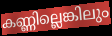
കണ്ണില്ലെങ്കിലും